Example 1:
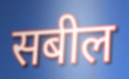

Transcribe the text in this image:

सबील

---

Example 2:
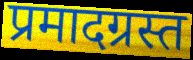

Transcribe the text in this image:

प्रमादग्रस्त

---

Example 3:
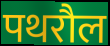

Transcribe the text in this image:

पथरौल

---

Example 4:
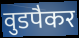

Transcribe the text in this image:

वुडपैकर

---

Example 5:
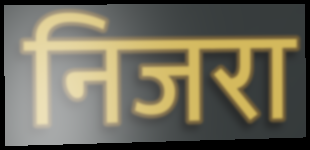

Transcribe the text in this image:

निजरा